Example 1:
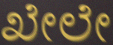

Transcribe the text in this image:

ಖೇಲೇ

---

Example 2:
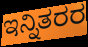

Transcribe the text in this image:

ಇನ್ನಿತರರ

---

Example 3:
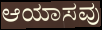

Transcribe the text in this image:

ಆಯಾಸವು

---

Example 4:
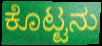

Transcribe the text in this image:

ಕೊಟ್ಟನು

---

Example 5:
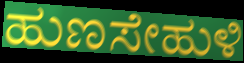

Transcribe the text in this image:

ಹುಣಸೇಹುಳಿ